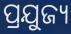
ପ୍ରଯୁଜ୍ୟ